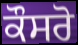
ਕੌਸਰੋ